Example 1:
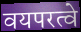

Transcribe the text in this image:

वयपरत्वे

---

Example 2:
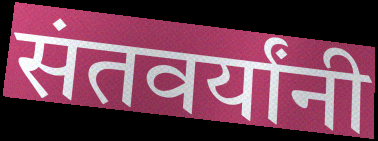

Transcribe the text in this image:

संतवर्यांनी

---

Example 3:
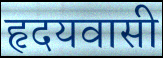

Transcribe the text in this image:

हृदयवासी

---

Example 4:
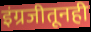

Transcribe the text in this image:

इंग्रजीतूनही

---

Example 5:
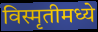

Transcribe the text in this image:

विस्मृतीमध्ये